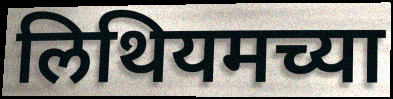
लिथियमच्या